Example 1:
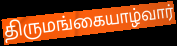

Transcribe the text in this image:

திருமங்கையாழ்வார்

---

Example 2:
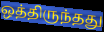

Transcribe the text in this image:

ஒத்திருந்தது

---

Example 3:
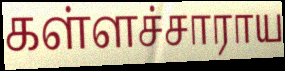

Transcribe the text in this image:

கள்ளச்சாராய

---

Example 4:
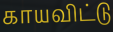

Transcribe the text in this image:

காயவிட்டு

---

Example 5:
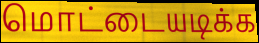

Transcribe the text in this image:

மொட்டையடிக்க